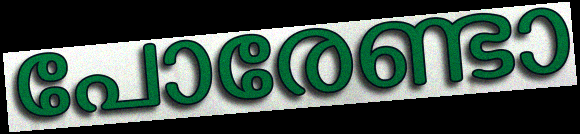
പോരേണ്ടാ